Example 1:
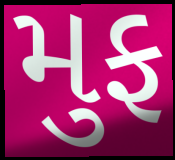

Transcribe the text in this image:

મુફ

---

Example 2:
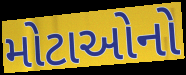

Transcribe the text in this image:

મોટાઓનો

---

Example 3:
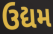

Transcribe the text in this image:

ઉદ્યમ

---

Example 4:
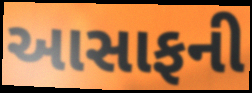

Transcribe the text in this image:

આસાફની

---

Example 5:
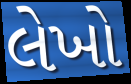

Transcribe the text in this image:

લેખો